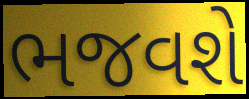
ભજવશે